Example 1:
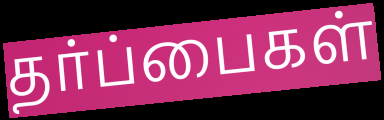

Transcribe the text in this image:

தர்ப்பைகள்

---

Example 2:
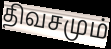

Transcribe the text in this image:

திவசமும்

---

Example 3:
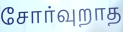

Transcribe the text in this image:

சோர்வுறாத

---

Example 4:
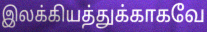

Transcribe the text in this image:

இலக்கியத்துக்காகவே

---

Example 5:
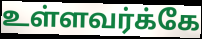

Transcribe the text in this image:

உள்ளவர்க்கே